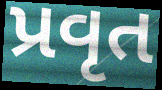
પ્રવૃત